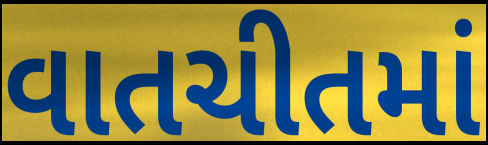
વાતચીતમાં